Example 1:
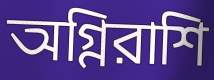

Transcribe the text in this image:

অগ্নিরাশি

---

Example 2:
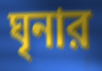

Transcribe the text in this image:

ঘৃনার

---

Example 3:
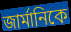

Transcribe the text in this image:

জার্মানিকে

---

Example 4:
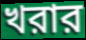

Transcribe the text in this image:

খরার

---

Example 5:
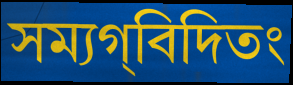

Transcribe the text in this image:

সম্যগ্‌বিদিতং